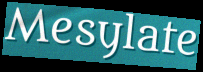
Mesylate